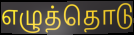
எழுத்தொடு